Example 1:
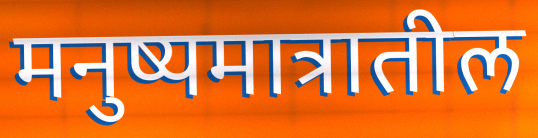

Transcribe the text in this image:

मनुष्यमात्रातील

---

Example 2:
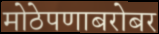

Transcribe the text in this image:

मोठेपणाबरोबर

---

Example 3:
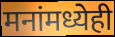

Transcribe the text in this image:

मनांमध्येही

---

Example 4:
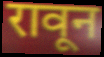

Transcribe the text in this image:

रावून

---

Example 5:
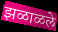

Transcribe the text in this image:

झळाळले